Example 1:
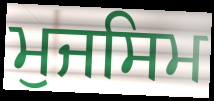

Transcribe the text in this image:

ਮੁਜਸਿਮ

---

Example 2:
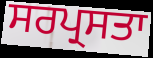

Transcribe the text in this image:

ਸਰਪ੍ਰਸਤਾ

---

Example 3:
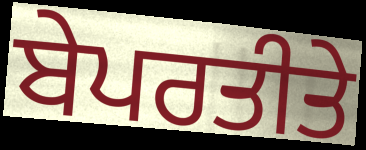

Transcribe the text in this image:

ਬੇਪਰਤੀਤੇ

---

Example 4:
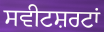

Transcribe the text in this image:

ਸਵੀਟਸ਼ਰਟਾਂ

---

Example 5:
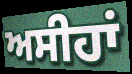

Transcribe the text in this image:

ਅਸੀਹਾਂ